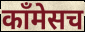
कॉंमेसच